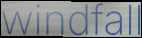
windfall